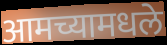
आमच्यामधले